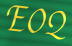
EOQ